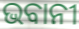
ଭବାନୀ